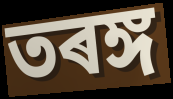
তৰঙ্গ